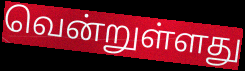
வென்றுள்ளது